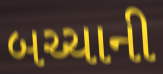
બચ્ચાની